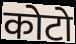
कोटो